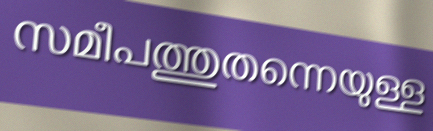
സമീപത്തുതന്നെയുള്ള